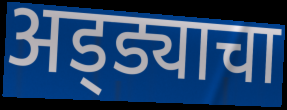
अड्ड्याचा